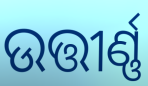
ଉତ୍ତୀର୍ଣ୍ଣ